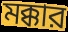
মক্কার